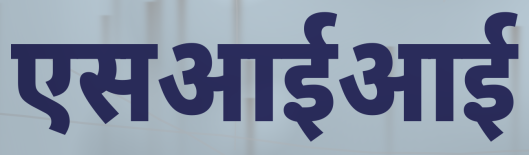
एसआईआई